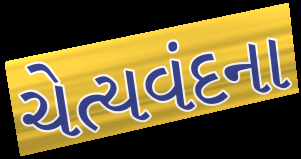
ચેત્યવંદના